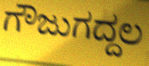
ಗೌಜುಗದ್ದಲ